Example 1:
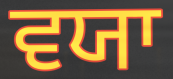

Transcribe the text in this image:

ਵਯਾ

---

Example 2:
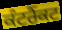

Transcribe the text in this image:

ਕੰਟਰੈੱਕਟ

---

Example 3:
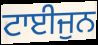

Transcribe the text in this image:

ਟਾਈਜੁਨ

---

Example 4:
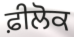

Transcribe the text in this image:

ਫ਼ੀਲੋਕ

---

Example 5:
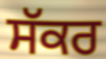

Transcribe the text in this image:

ਸੱਕਰ